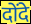
दोंदे